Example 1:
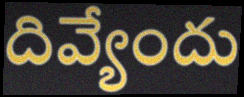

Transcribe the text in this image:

దివ్యేందు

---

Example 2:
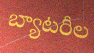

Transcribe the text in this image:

బ్యాటరీల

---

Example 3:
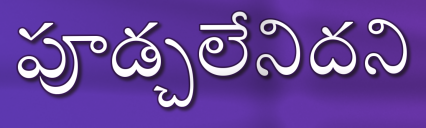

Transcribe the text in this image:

పూడ్చలేనిదని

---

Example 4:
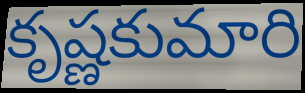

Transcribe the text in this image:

కృష్ణకుమారి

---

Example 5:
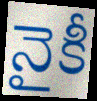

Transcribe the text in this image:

నైకీ